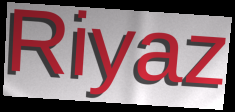
Riyaz